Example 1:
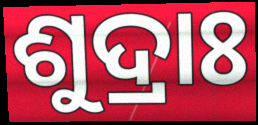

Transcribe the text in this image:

ଶୁଦ୍ରାଃ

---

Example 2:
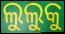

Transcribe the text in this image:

ଲୁଲୁକୁ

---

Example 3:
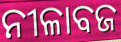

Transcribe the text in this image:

ନୀଳାବଜ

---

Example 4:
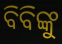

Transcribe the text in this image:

ବିବିଙ୍କୁ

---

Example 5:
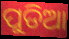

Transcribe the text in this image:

ପୁଡିଆ